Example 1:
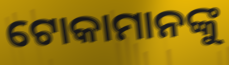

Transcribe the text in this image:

ଟୋକାମାନଙ୍କୁ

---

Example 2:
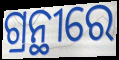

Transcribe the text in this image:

ଗ୍ରନ୍ଥୀରେ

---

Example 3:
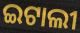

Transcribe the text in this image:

ଇଟାଲୀ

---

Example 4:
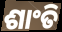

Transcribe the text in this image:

ଶାଂତି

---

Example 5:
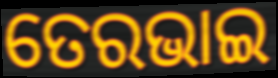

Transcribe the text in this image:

ତେରଭାଇ